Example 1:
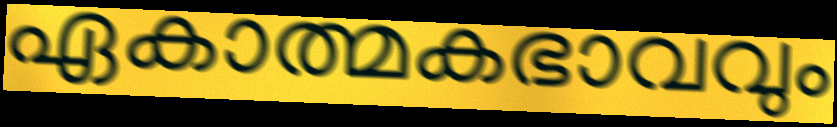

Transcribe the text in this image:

ഏകാത്മകഭാവവും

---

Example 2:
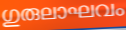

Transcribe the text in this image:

ഗുരുലാഘവം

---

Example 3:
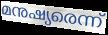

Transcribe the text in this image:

മനുഷ്യരെന്ന്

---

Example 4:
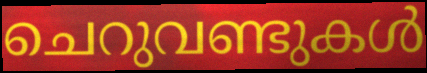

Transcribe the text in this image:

ചെറുവണ്ടുകൾ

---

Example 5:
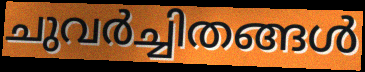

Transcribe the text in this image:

ചുവർച്ചിതങ്ങൾ